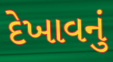
દેખાવનું